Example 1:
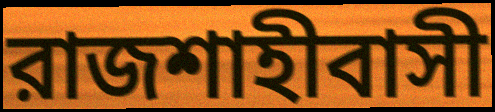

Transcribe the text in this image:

রাজশাহীবাসী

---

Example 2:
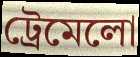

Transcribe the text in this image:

ট্রেমেলো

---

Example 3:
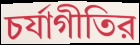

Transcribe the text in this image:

চর্যাগীতির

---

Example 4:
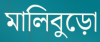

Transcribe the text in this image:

মালিবুড়ো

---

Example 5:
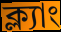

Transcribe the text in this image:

ক্ল্যাং